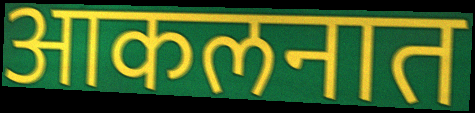
आकलनात